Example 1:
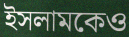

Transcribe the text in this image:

ইসলামকেও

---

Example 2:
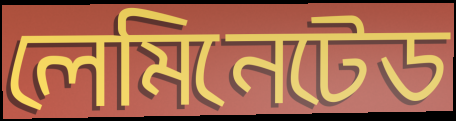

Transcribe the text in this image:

লেমিনেটেড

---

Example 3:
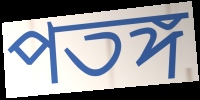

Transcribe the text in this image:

পতঙ্গ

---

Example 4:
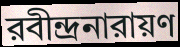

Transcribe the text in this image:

রবীন্দ্রনারায়ণ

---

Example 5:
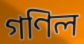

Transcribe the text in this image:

গণিল